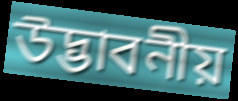
উদ্ভাবনীয়